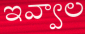
ఇవ్వాల